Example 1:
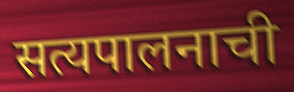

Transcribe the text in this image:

सत्यपालनाची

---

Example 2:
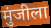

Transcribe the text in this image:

मुंजीला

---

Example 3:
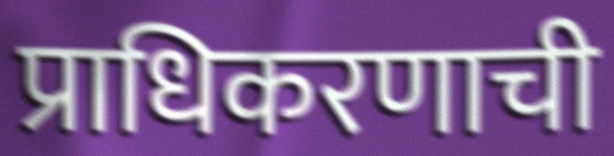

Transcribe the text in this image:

प्राधिकरणाची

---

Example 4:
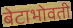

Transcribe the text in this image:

बेटाभोवती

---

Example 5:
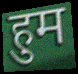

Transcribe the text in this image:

हुम